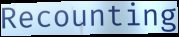
Recounting